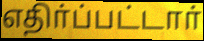
எதிர்ப்பட்டார்